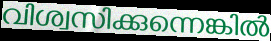
വിശ്വസിക്കുന്നെങ്കിൽ